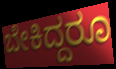
ಬೇಕಿದ್ದರೂ